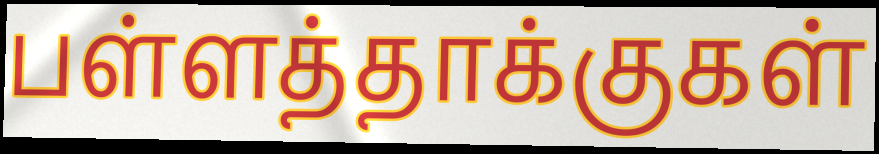
பள்ளத்தாக்குகள்